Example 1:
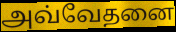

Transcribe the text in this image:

அவ்வேதனை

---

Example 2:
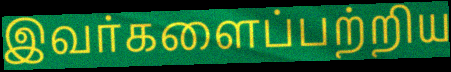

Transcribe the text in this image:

இவர்களைப்பற்றிய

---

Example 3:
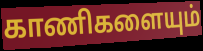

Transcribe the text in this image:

காணிகளையும்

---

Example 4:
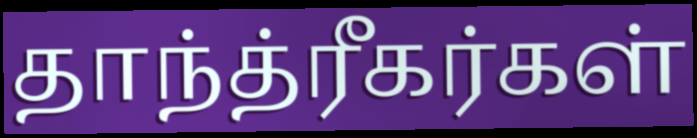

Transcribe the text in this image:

தாந்த்ரீகர்கள்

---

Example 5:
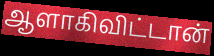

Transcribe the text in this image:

ஆளாகிவிட்டான்